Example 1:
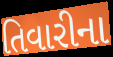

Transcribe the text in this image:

તિવારીના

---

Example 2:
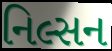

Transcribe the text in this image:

નિલ્સન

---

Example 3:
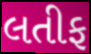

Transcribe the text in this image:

લતીફ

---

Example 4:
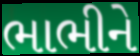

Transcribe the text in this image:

ભાભીને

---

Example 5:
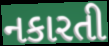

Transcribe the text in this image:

નકારતી